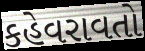
કહેવરાવતો